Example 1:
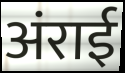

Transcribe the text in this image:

अंराई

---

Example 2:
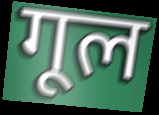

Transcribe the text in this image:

गूल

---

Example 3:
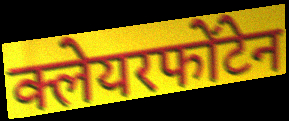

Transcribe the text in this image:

क्लेयरफोंटेन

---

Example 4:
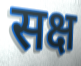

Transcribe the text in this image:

सक्ष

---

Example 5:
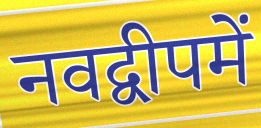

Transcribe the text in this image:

नवद्वीपमें